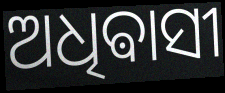
ଅଧିଵାସୀ